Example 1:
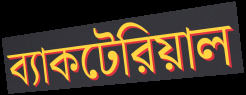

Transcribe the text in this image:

ব্যাকটেরিয়াল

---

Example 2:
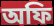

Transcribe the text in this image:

অফি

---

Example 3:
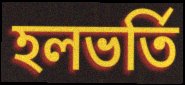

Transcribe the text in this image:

হলভর্তি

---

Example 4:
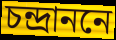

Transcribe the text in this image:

চন্দ্রাননে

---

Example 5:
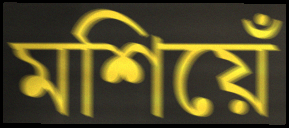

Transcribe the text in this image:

মশিয়েঁ